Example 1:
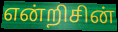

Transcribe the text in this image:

என்றிசின்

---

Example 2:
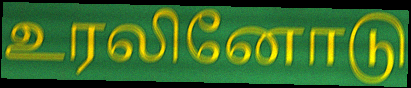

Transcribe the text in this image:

உரலினோடு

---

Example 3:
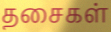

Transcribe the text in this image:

தசைகள்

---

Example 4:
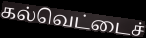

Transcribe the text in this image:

கல்வெட்டைச்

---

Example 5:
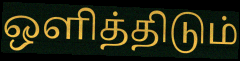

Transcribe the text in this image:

ஒளித்திடும்